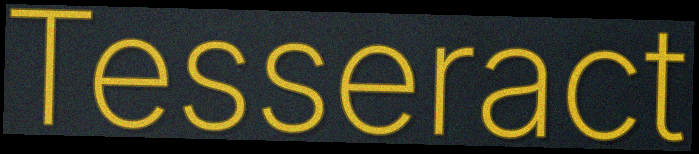
Tesseract